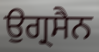
ਉਗ੍ਰਸੈਨ